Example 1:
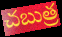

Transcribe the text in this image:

చబుత్ర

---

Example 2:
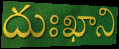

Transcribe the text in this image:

దుఃఖాని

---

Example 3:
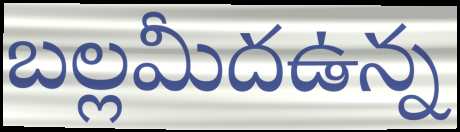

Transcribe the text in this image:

బల్లమీదఉన్న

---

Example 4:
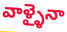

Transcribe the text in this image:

వాళ్ళైనా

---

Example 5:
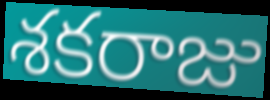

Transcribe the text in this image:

శకరాజు